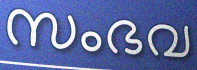
സംഭവ